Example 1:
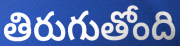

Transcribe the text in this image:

తిరుగుతోంది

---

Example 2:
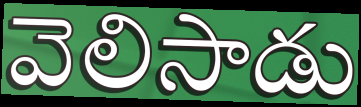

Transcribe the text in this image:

వెలిసాడు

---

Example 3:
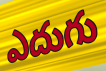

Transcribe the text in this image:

ఎదుగు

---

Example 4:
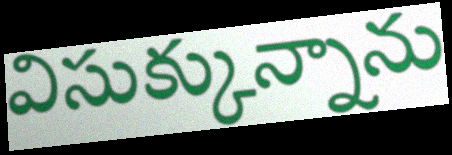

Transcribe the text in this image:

విసుక్కున్నాను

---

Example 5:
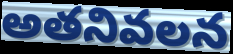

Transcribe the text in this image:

అతనివలన